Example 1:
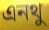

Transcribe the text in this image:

এনথু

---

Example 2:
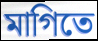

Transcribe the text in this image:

মাগিতে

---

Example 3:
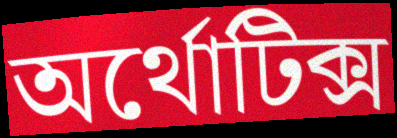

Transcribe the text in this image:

অর্থোটিক্স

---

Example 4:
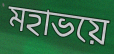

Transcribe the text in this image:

মহাভয়ে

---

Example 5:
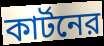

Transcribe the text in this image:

কার্টনের